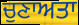
ਚੁਣਾਅਤਾ